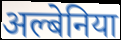
अल्बेनिया